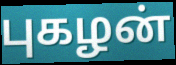
புகழன்